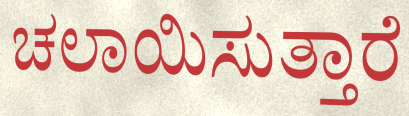
ಚಲಾಯಿಸುತ್ತಾರೆ